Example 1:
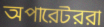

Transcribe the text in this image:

অপারেটররা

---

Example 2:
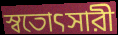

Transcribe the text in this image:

স্বতোৎসারী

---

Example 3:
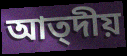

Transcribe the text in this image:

আত্দীয়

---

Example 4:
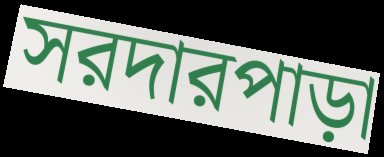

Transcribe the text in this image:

সরদারপাড়া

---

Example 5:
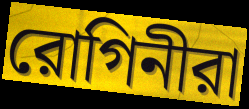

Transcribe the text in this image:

রোগিনীরা